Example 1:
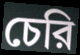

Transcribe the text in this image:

চেরি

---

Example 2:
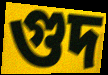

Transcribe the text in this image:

গুদ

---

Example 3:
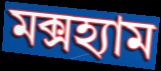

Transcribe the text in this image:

মক্সহ্যাম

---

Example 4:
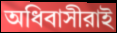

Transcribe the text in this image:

অধিবাসীরাই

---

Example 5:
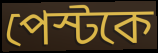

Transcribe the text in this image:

পেস্টকে